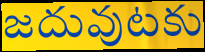
జదువుటకు